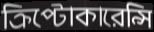
ক্রিপ্টোকারেন্সি